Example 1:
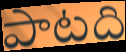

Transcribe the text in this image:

పాటది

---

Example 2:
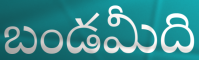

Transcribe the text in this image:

బండమీది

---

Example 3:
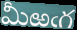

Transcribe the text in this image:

మీఱఁగ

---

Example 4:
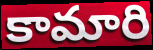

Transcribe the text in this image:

కామారి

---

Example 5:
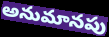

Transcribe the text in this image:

అనుమానపు